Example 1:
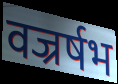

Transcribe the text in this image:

वज्रर्षभ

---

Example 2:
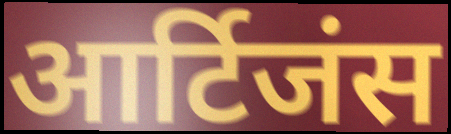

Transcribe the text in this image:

आर्टिजंस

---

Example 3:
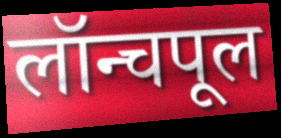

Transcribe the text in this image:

लॉन्चपूल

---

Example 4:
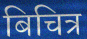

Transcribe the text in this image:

बिचित्र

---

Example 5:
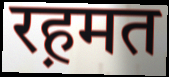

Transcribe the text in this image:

रह़मत